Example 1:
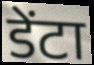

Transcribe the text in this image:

डेंटा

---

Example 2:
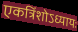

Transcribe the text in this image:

एकत्रिंशोऽध्यायः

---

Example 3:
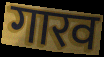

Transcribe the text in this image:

गारव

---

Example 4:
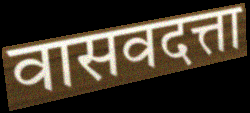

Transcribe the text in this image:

वासवदत्ता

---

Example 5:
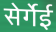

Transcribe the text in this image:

सेर्गेई